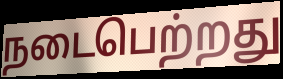
நடைபெற்றது